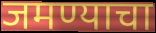
जमण्याचा